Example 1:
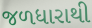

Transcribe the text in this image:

જળધારાથી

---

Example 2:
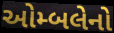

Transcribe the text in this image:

ઓમ્બલેનો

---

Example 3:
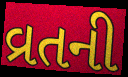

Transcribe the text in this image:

વ્રતની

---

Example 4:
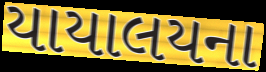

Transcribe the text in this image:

યાયાલયના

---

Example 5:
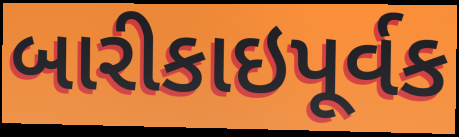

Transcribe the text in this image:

બારીકાઇપૂર્વક